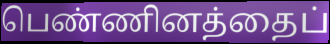
பெண்ணினத்தைப்